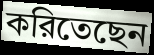
করিতেছেন